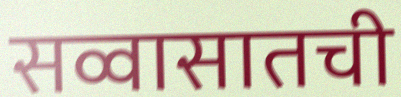
सव्वासातची